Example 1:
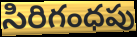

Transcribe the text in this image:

సిరిగంధపు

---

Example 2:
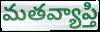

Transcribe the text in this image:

మతవ్యాప్తి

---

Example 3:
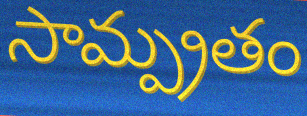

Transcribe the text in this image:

సామ్ప్రతం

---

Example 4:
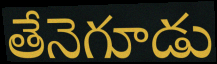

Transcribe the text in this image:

తేనెగూడు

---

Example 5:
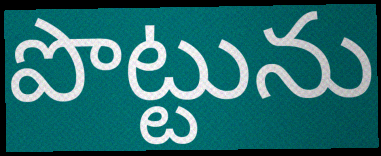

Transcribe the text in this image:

పొట్టును